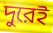
দুরেই